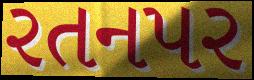
રતનપર